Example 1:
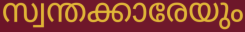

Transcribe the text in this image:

സ്വന്തക്കാരേയും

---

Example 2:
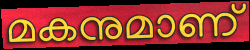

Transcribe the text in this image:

മകനുമാണ്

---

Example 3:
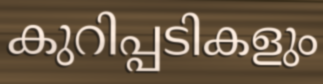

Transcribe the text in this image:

കുറിപ്പടികളും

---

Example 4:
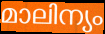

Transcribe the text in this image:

മാലിന്യം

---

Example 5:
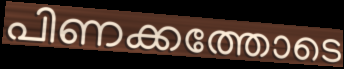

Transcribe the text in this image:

പിണക്കത്തോടെ